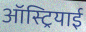
ऑस्ट्रियाई